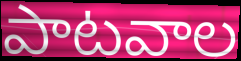
పాటవాల